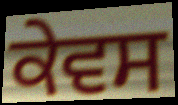
ਕੇਵਸ